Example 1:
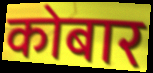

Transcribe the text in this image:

कोबार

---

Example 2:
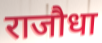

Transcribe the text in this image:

राजौधा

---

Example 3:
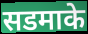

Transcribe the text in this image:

सडमाके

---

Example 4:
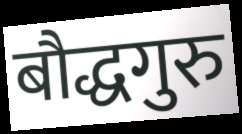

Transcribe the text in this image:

बौद्धगुरु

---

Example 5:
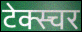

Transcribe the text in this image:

टेक्स्चर